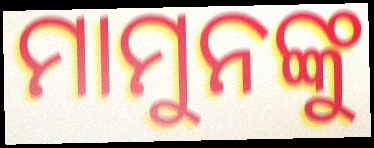
ମାମୁନଙ୍କୁ